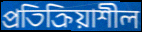
প্রতিক্রিয়াশীল